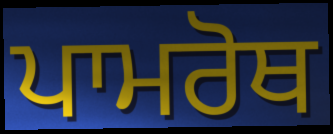
ਪਾਮਰੋਥ